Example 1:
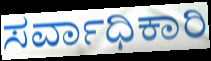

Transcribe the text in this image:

ಸರ್ವಾಧಿಕಾರಿ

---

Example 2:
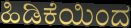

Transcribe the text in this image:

ಹಿಡಿಕೆಯಿಂದ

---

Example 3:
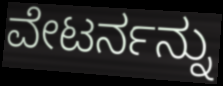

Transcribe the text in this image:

ವೇಟರ್ನನ್ನು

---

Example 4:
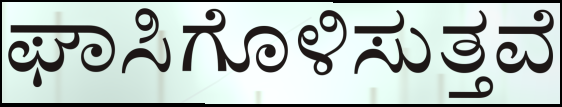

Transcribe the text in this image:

ಘಾಸಿಗೊಳಿಸುತ್ತವೆ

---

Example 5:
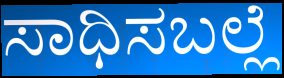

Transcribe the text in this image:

ಸಾಧಿಸಬಲ್ಲೆ